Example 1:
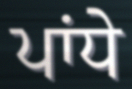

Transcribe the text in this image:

ਪਾਂਧੇ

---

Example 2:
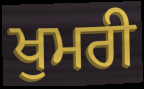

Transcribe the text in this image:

ਖੁਮਰੀ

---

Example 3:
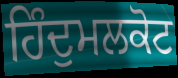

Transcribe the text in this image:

ਹਿੰਦੁਮਲਕੋਟ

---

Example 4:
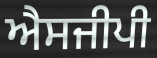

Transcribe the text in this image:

ਐਸਜੀਪੀ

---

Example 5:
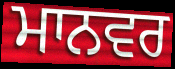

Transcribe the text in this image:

ਮਾਨਵਰ